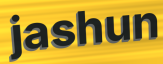
jashun